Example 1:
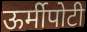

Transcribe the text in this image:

ऊर्मीपोटी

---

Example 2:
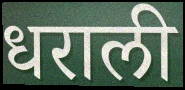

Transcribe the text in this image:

धराली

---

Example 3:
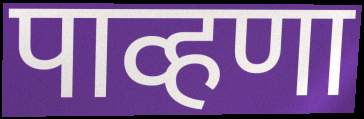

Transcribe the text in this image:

पाव्हणा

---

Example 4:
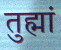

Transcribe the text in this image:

तुह्मां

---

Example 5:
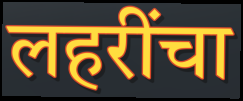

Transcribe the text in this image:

लहरींचा